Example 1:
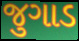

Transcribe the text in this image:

જુગાડ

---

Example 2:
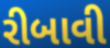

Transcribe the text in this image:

રીબાવી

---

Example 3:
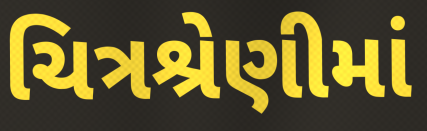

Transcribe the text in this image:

ચિત્રશ્રેણીમાં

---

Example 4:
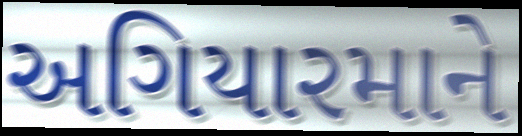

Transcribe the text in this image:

અગિયારમાને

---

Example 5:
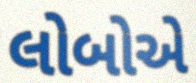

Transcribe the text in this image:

લોબોએ